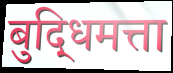
बुद्धिमत्ता